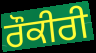
ਰੌਕੀਰੀ